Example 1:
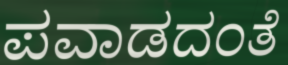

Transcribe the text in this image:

ಪವಾಡದಂತೆ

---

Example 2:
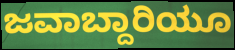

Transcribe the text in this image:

ಜವಾಬ್ದಾರಿಯೂ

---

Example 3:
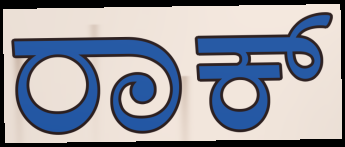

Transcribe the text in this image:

ರಾಕ್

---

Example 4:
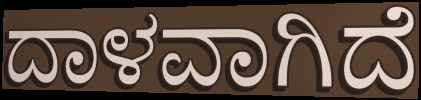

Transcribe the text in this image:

ದಾಳವಾಗಿದೆ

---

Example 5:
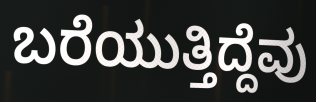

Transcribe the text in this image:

ಬರೆಯುತ್ತಿದ್ದೆವು